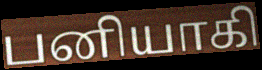
பனியாகி